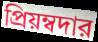
প্রিয়ম্বদার